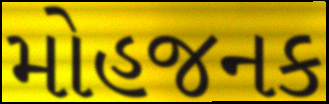
મોહજનક